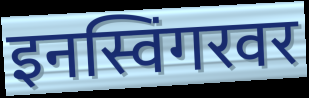
इनस्विंगरवर